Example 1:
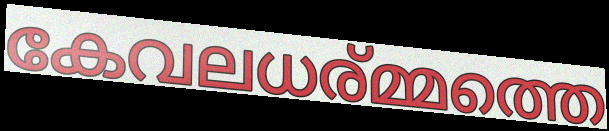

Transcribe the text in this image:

കേവലധര്മ്മത്തെ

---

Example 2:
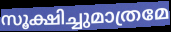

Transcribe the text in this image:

സൂക്ഷിച്ചുമാത്രമേ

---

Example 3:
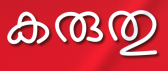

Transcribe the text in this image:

കരുതു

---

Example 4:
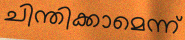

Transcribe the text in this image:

ചിന്തിക്കാമെന്ന്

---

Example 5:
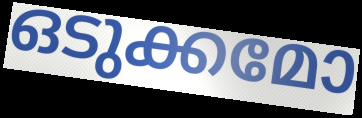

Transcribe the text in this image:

ഒടുക്കമോ